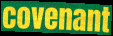
covenant